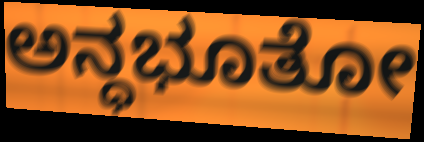
ಅನ್ಧಭೂತೋ